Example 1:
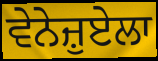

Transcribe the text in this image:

ਵੇਨੇਜ਼ੁਏਲਾ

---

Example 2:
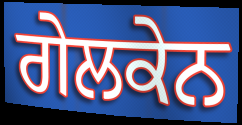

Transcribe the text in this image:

ਗੇਲਕੇਨ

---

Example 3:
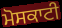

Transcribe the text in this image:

ਮੋਸਕਾਟੀ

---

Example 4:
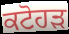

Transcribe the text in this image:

ਕਟੋਹੜ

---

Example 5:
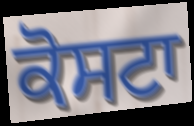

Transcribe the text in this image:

ਕੋਸਟਾ